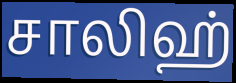
சாலிஹ்